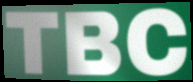
TBC